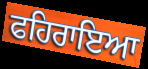
ਫਹਿਰਾਇਆ